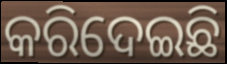
କରିଦେଇଛି